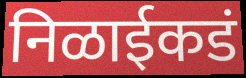
निळाईकडं